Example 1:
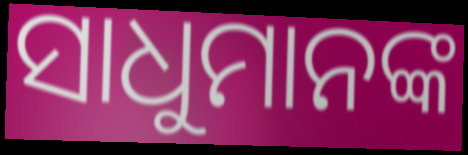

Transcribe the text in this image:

ସାଧୁମାନଙ୍କ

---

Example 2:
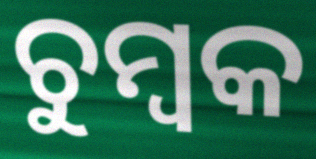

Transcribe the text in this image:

ଚୁମ୍ବକ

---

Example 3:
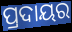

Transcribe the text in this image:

ପ୍ରଦାୟର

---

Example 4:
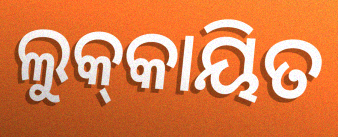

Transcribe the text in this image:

ଲୁକ୍‌କାୟିତ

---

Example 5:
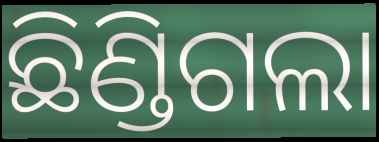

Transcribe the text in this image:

ଛିଣ୍ଡିଗଲା